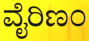
ವೈರಿಣಂ